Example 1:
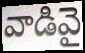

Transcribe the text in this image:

వాడివై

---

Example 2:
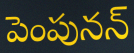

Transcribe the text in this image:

పెంపునన్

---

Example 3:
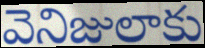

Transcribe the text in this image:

వెనిజులాకు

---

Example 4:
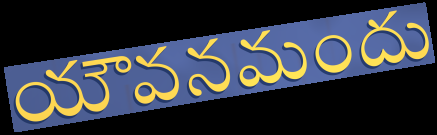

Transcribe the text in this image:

యౌవనమందు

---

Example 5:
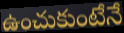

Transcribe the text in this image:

ఉంచుకుంటేనే